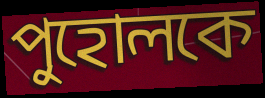
পুহোলকে